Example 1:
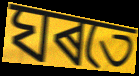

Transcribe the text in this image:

ঘৰতে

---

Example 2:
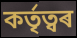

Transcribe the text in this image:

কৰ্তৃত্বৰ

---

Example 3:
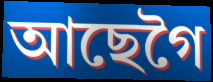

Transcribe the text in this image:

আছেগৈ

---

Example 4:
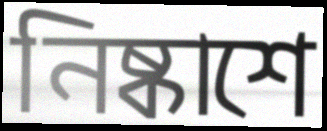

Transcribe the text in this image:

নিষ্কাশে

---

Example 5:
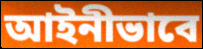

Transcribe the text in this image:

আইনীভাবে